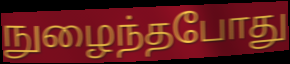
நுழைந்தபோது